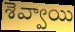
శెవ్వాయి